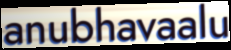
anubhavaalu